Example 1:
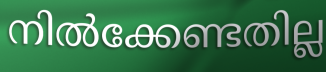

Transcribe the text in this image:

നിൽക്കേണ്ടതില്ല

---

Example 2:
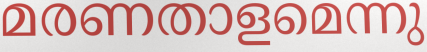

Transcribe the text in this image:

മരണതാളമെന്നു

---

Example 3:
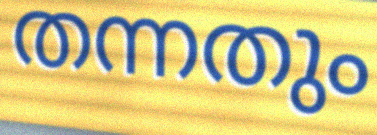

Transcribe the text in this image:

തന്നതും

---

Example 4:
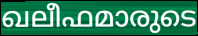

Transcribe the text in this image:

ഖലീഫമാരുടെ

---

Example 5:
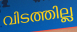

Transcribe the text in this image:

വിടത്തില്ല